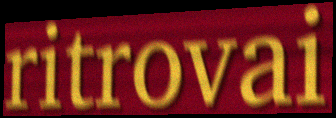
ritrovai